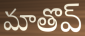
మాతొవ్